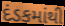
દંડકમાંથી